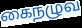
கைநழுவ